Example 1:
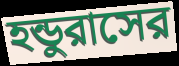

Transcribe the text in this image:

হন্ডুরাসের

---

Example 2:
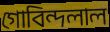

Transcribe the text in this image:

গোবিন্দলাল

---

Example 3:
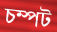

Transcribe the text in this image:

চম্পট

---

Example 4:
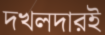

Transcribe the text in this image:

দখলদারই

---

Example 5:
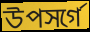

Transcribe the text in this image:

উপসর্গে